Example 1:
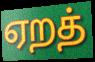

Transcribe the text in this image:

ஏறத்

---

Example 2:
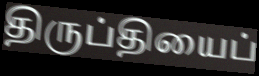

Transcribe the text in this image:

திருப்தியைப்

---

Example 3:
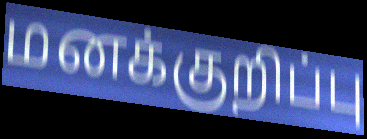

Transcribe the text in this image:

மனக்குறிப்பு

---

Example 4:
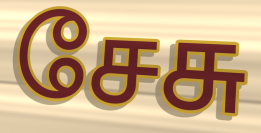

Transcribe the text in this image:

சேசு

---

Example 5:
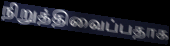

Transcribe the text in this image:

நிறுத்திவைப்பதாக